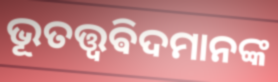
ଭୂତତ୍ତ୍ୱଵିଦମାନଙ୍କ